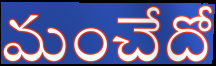
మంచేదో